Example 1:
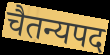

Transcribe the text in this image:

चैतन्यपद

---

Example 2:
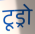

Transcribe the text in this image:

टूड्रो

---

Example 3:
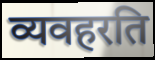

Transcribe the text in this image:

व्यवहरति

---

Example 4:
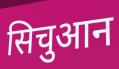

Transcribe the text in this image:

सिचुआन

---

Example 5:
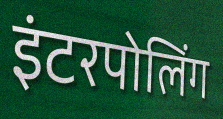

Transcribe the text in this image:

इंटरपोलिंग